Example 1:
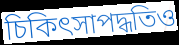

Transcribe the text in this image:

চিকিৎসাপদ্ধতিও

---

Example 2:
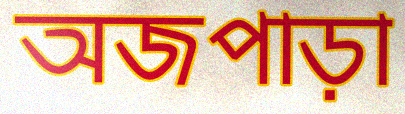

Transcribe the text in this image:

অজপাড়া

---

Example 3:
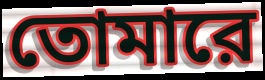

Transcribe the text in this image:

তোমারে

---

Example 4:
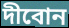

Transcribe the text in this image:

দীবোন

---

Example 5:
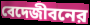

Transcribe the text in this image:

বেদেজীবনের